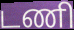
டணி